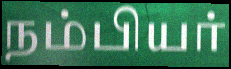
நம்பியர்